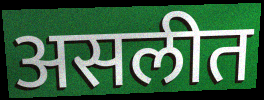
असलीत